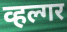
व्हल्गर